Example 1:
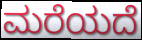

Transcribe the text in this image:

ಮರೆಯದೆ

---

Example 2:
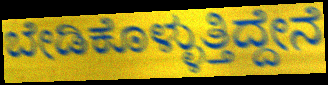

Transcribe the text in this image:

ಬೇಡಿಕೊಳ್ಳುತ್ತಿದ್ದೇನೆ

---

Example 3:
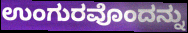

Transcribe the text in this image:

ಉಂಗುರವೊಂದನ್ನು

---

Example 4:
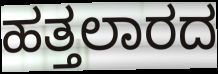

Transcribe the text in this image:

ಹತ್ತಲಾರದ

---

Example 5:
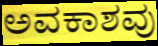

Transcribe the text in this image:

ಅವಕಾಶವು